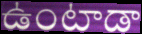
ఉంటాడా